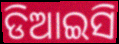
ଡିଆଇସି